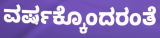
ವರ್ಷಕ್ಕೊಂದರಂತೆ